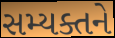
સમ્યક્તને